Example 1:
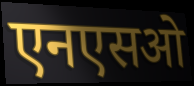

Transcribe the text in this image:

एनएसओ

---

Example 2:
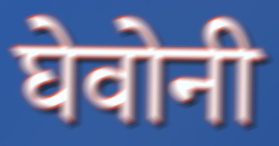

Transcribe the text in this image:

घेवोनी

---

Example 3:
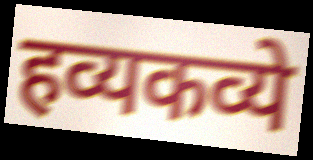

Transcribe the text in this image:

हव्यकव्ये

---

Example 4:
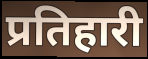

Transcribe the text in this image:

प्रतिहारी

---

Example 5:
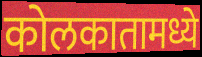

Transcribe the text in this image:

कोलकातामध्ये